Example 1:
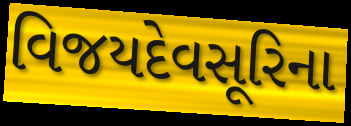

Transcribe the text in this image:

વિજયદેવસૂરિના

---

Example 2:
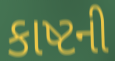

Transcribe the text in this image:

કાષ્ટની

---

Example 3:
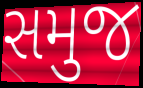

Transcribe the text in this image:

સમુજ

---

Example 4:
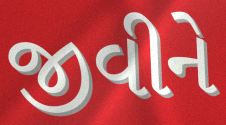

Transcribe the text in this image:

જીવીને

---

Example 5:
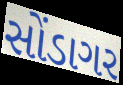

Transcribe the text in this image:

સોંડાગર